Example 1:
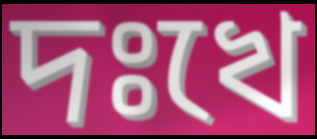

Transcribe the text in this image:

দঃখে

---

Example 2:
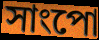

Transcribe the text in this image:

সাংপো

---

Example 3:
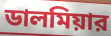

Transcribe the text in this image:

ডালমিয়ার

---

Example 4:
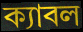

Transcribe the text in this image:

ক্যাবল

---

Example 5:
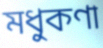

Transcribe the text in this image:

মধুকণা